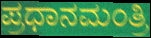
ಪ್ರಧಾನಮಂತ್ರಿ